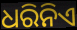
ଧରିନିଏ